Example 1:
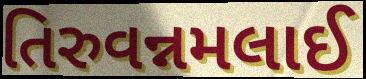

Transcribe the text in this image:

તિરુવન્નમલાઈ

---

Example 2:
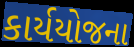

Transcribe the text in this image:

કાર્યયોજના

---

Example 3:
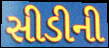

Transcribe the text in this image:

સીડીની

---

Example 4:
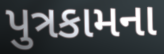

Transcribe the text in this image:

પુત્રકામના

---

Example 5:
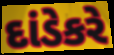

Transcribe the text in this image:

દાંડેકરે